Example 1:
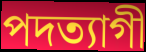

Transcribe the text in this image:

পদত্যাগী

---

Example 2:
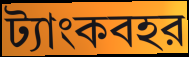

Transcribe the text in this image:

ট্যাংকবহর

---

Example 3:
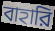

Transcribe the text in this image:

বাহারি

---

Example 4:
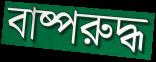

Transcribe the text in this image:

বাষ্পরুদ্ধ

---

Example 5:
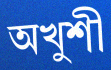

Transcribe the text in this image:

অখুশী